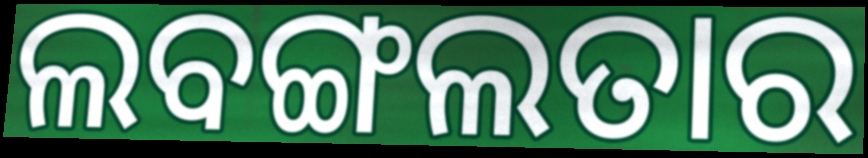
ଲବଙ୍ଗଲତାର